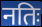
नतिः